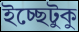
ইচ্ছেটুকু